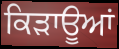
ਕਿੜਾਊਆਂ